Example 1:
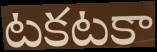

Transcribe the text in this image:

టకటకా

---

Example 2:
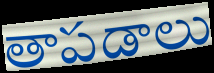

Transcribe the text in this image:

తాపడాలు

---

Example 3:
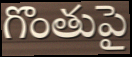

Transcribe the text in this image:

గొంతుపై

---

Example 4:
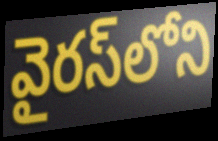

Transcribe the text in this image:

వైరస్‌లోని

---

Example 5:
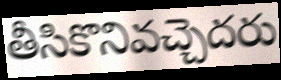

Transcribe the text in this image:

తీసికొనివచ్చెదరు